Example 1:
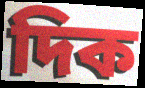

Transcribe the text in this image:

দিক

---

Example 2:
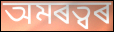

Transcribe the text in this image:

অমৰত্বৰ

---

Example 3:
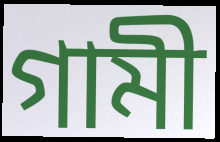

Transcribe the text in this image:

গামী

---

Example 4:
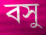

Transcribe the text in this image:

বসু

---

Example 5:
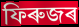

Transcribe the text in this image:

ফিৰুজৰ